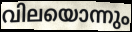
വിലയൊന്നും